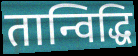
तान्विद्धि